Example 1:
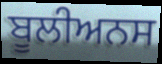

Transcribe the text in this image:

ਬੂਲੀਅਨਸ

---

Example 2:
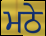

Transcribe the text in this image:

ਮਠੇ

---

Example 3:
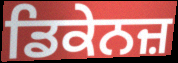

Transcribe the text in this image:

ਡਿਕੇਨਜ਼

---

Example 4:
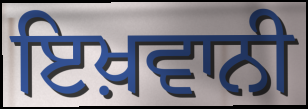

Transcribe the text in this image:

ਇਖ਼ਵਾਨੀ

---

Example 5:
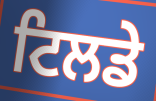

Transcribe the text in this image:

ਟਿਲਡੇ